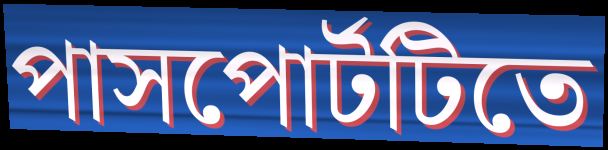
পাসপোর্টটিতে